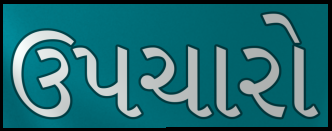
ઉપચારો